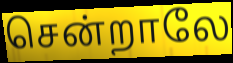
சென்றாலே